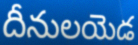
దీనులయెడ